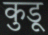
कुडू